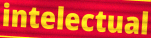
intelectual